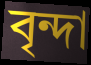
বৃন্দা